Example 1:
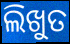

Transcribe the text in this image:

ଲିଖୁତ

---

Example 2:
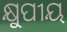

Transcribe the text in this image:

କ୍ଷୁପୀୟ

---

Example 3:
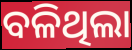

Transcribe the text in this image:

ବଳିଥିଲା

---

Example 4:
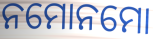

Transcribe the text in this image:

ନମୋନମୋ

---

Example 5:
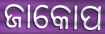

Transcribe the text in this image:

ଜାକୋପ